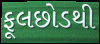
ફૂલછોડથી